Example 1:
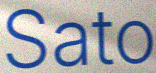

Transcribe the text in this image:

Sato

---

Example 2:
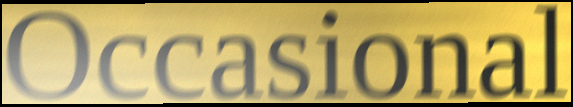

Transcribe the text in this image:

Occasional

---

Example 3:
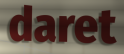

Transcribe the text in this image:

daret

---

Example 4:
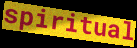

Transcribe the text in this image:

spiritual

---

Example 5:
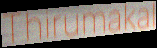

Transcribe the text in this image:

Thirumakal